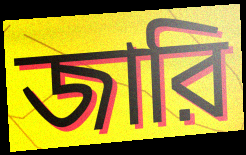
জারি